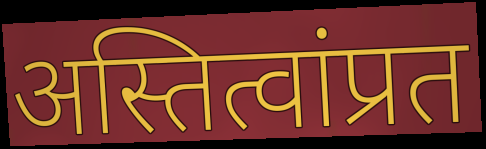
अस्तित्वांप्रत